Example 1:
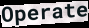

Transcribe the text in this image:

Operate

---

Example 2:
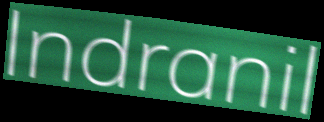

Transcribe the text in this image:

Indranil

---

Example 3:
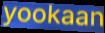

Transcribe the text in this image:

yookaan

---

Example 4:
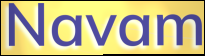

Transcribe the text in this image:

Navam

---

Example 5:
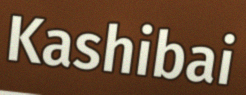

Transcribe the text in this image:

Kashibai